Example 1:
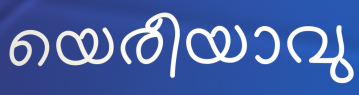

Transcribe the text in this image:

യെരീയാവു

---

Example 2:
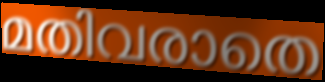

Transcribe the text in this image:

മതിവരാതെ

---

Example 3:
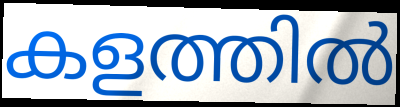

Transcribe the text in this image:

കളത്തിൽ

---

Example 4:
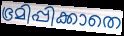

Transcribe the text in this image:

ഭ്രമിപ്പിക്കാതെ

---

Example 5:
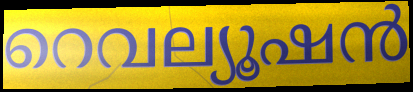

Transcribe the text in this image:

റെവല്യൂഷൻ